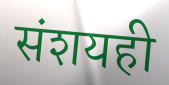
संशयही